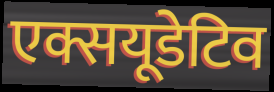
एक्सयूडेटिव